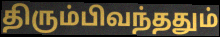
திரும்பிவந்ததும்